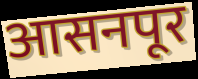
आसनपूर